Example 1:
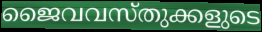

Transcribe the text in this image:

ജൈവവസ്തുക്കളുടെ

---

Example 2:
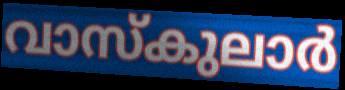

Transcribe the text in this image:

വാസ്കുലാർ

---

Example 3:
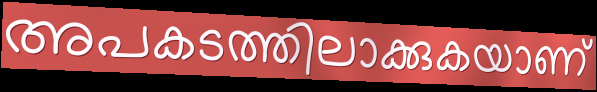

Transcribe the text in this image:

അപകടത്തിലാക്കുകയാണ്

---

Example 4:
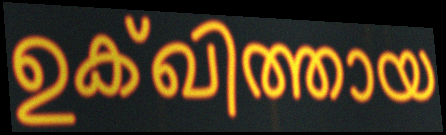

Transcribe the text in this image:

ഉക്ഖിത്തായ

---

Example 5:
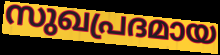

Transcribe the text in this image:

സുഖപ്രദമായ